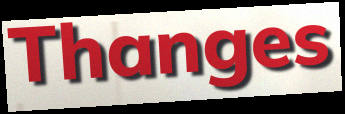
Thanges